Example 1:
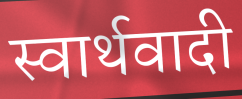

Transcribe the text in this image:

स्वार्थवादी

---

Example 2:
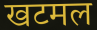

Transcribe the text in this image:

खटमल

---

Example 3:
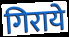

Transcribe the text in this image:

गिराये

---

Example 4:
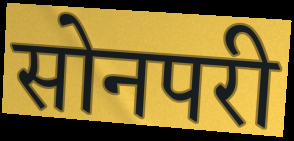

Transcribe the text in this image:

सोनपरी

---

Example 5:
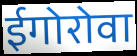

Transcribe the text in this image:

ईगोरोवा